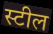
स्‍टील